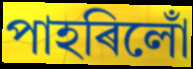
পাহৰিলোঁ